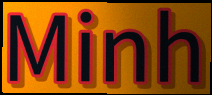
Minh